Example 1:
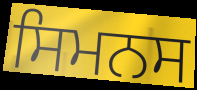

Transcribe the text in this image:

ਸਿਮਨਸ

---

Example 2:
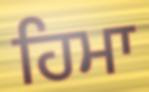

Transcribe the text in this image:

ਹਿਮਾ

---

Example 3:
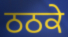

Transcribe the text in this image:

ਠਠਕੇ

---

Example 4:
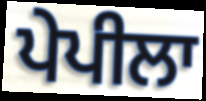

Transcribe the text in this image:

ਪੇਪੀਲਾ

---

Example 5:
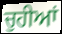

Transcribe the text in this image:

ਚੁਹੀਆਂ